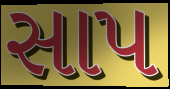
સાપ